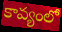
కావ్యంలో